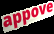
appove